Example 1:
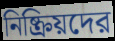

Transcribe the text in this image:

নিষ্ক্রিয়দের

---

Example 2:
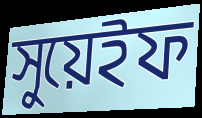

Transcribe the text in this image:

সুয়েইফ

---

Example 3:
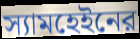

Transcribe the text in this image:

স্যামহেইনের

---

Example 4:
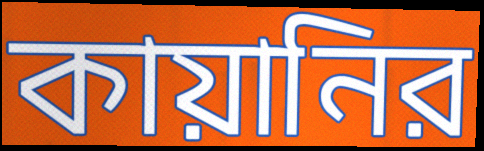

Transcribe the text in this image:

কায়ানির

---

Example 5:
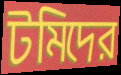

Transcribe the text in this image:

টমিদের